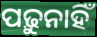
ପଢ଼ୁନାହିଁ